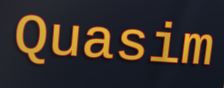
Quasim